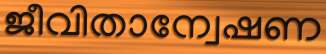
ജീവിതാന്വേഷണ